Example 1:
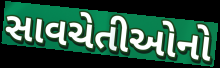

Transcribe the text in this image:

સાવચેતીઓનો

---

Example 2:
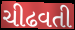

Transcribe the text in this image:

ચીઢવતી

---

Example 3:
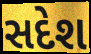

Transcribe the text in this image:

સદેશ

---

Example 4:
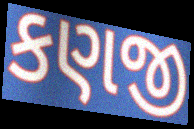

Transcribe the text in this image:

કણજી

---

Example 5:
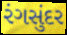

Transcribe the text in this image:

રંગસુંદર